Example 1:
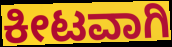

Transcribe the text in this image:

ಕೀಟವಾಗಿ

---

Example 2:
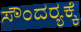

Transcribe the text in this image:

ಸೌಂದರ‍್ಯಕ್ಕೆ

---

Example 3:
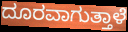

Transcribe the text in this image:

ದೂರವಾಗುತ್ತಾಳೆ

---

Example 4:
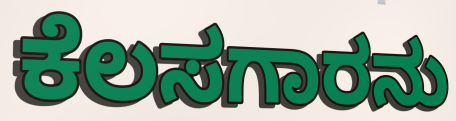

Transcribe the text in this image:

ಕೆಲಸಗಾರನು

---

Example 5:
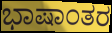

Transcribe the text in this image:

ಭಾಷಾಂತರ